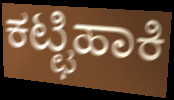
ಕಟ್ಟಿಹಾಕಿ